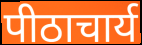
पीठाचार्य